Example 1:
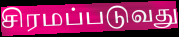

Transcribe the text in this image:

சிரமப்படுவது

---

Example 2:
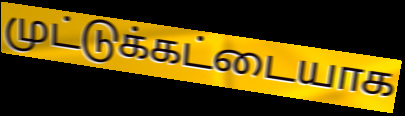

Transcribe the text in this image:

முட்டுக்கட்டையாக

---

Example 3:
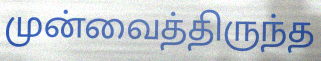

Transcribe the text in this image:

முன்வைத்திருந்த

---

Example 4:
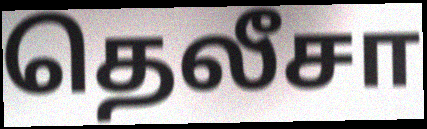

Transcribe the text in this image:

தெலீசா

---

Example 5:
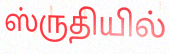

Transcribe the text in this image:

ஸ்ருதியில்